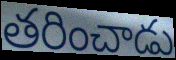
తరించాడు